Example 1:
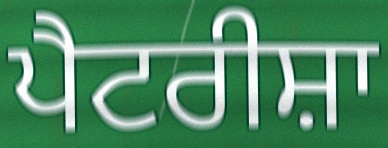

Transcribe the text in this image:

ਪੈਟਰੀਸ਼ਾ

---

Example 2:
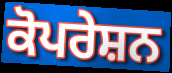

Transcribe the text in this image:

ਕੋਪਰੇਸ਼ਨ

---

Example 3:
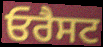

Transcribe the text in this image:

ਓਰੈਸਟ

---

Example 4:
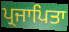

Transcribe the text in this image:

ਪ੍ਰਜਾਪਿਤਾ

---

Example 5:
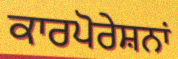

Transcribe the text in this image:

ਕਾਰਪੋਰੇਸ਼ਨਾਂ